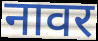
नावर